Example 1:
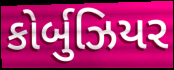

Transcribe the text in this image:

કોર્બુઝિયર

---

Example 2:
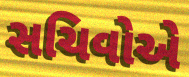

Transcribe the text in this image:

સચિવોએ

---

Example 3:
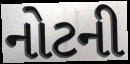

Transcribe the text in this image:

નોટની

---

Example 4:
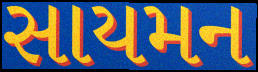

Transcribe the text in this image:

સાયમન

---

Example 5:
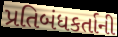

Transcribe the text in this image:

પ્રતિબંધકર્તાની